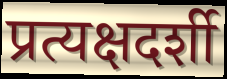
प्रत्यक्षदर्शी